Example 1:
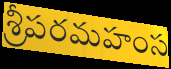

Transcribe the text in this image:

శ్రీపరమహంస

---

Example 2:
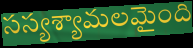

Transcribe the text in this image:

సస్యశ్యామలమైంది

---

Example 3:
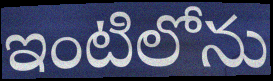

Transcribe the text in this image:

ఇంటిలోను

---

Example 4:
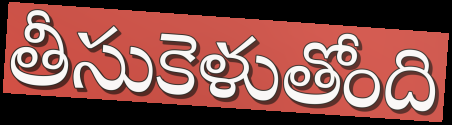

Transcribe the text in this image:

తీసుకెళుతోంది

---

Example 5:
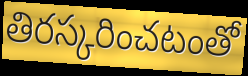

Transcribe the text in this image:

తిరస్కరించటంతో